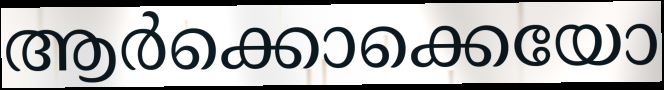
ആർക്കൊക്കെയോ